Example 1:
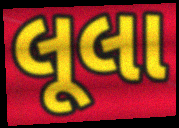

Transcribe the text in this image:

લૂલા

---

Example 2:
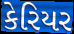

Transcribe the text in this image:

કેરિયર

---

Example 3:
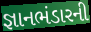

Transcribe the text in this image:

જ્ઞાનભંડારની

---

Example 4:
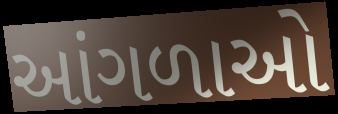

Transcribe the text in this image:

આંગળાઓ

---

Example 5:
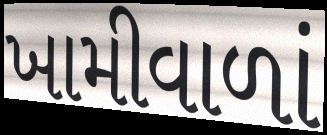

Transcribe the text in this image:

ખામીવાળાં